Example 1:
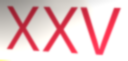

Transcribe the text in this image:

xxv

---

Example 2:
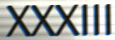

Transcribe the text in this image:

XXXIII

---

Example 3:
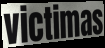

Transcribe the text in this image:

victimas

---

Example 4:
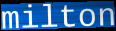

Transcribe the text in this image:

milton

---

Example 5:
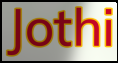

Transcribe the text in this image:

Jothi